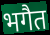
भगैत